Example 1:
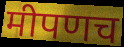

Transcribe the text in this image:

मीपणच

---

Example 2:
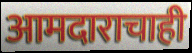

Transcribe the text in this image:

आमदाराचाही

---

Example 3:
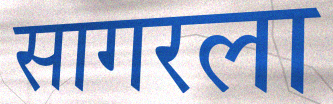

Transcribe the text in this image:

सागरला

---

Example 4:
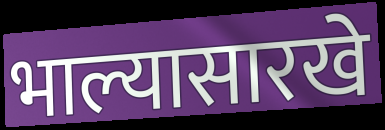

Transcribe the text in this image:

भाल्यासारखे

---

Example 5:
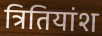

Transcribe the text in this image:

त्रितियांश